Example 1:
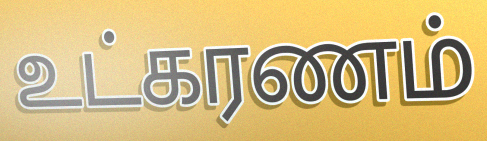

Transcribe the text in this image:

உட்கரணம்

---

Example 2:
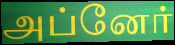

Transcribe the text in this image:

அப்னேர்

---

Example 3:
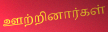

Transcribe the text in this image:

ஊற்றினார்கள்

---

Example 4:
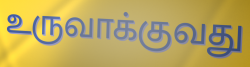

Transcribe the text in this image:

உருவாக்குவது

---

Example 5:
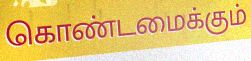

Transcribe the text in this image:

கொண்டமைக்கும்